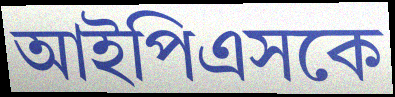
আইপিএসকে